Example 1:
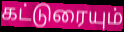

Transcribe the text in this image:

கட்டுரையும்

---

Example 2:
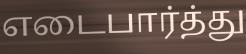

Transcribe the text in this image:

எடைபார்த்து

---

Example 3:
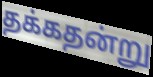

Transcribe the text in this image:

தக்கதன்று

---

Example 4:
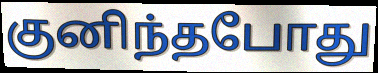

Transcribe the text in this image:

குனிந்தபோது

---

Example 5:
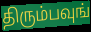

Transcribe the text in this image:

திரும்பவுங்